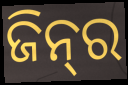
ଜିନ୍‍ର